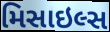
મિસાઇલ્સ